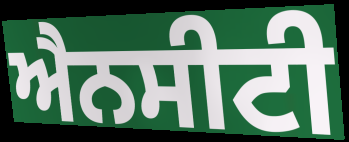
ਐਨਸੀਟੀ